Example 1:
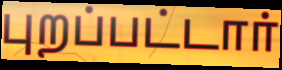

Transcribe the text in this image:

புறப்பட்டார்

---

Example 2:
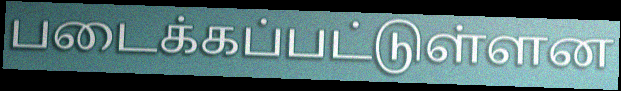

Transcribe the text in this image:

படைக்கப்பட்டுள்ளன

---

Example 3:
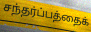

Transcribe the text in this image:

சந்தர்ப்பத்தைக்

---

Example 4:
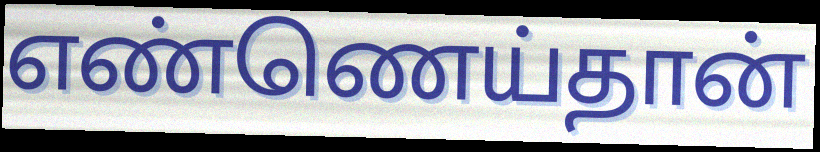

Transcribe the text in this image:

எண்ணெய்தான்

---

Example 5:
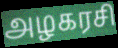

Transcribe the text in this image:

அழகரசி